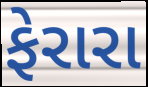
ફેરારા